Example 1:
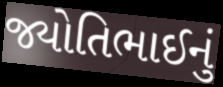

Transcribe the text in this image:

જ્યોતિભાઈનું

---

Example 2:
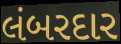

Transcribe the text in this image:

લંબરદાર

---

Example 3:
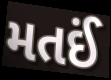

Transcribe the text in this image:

મતઈં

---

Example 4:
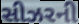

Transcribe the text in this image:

સીઝરની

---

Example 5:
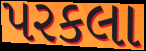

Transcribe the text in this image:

પરકલા